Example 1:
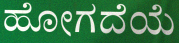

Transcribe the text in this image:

ಹೋಗದೆಯೆ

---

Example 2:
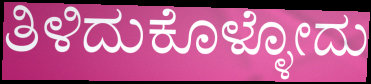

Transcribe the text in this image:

ತಿಳಿದುಕೊಳ್ಳೋದು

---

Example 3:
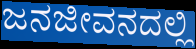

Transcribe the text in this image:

ಜನಜೀವನದಲ್ಲಿ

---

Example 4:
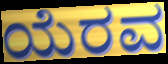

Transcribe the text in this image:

ಯೆರವ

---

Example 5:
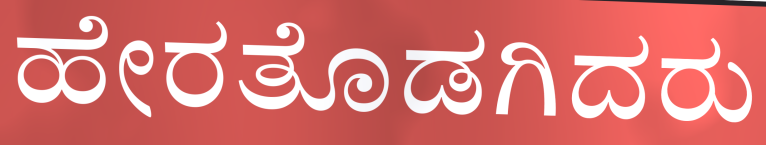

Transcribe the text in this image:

ಹೇರತೊಡಗಿದರು